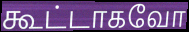
கூட்டாகவோ